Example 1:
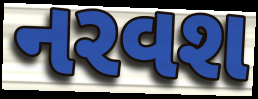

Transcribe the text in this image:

નરવશ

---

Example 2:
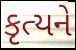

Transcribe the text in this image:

કૃત્યને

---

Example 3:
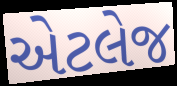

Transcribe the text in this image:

એટલેજ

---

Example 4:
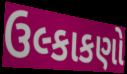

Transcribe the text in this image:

ઉલ્કાકણો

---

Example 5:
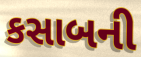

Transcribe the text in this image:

કસાબની